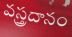
వస్త్రదానం